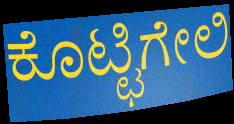
ಕೊಟ್ಟಿಗೇಲಿ